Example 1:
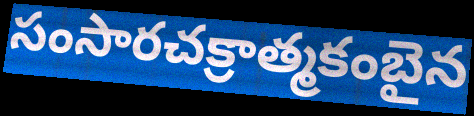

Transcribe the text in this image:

సంసారచక్రాత్మకంబైన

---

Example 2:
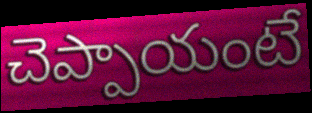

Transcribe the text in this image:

చెప్పాయంటే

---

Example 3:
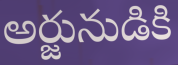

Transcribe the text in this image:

అర్జునుడికి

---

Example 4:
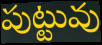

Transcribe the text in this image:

పుట్టువు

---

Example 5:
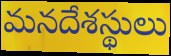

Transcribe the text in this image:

మనదేశస్థులు